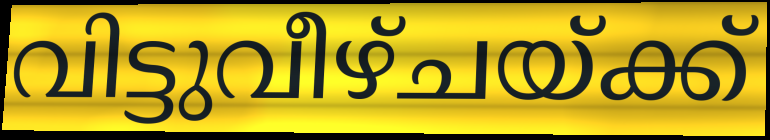
വിട്ടുവീഴ്ചയ്ക്ക്